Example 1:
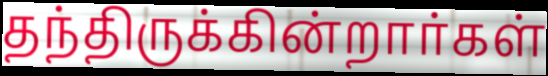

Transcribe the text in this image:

தந்திருக்கின்றார்கள்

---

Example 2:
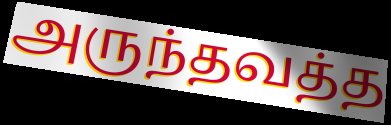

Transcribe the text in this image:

அருந்தவத்த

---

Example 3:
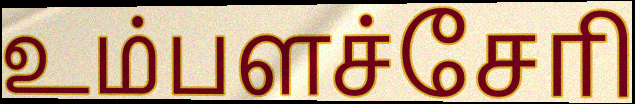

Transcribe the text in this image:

உம்பளச்சேரி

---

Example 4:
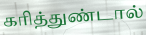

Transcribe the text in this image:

கரித்துண்டால்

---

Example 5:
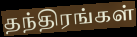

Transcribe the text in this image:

தந்திரங்கள்